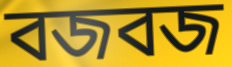
বজবজ